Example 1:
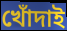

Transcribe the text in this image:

খোঁদাই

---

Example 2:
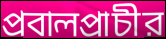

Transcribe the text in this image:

প্রবালপ্রাচীর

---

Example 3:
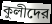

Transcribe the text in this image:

কুলীদের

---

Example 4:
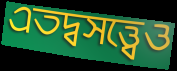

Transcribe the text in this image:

এতদ্বসত্ত্বেও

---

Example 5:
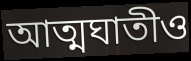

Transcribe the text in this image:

আত্মঘাতীও